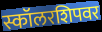
स्कॉलरशिपवर